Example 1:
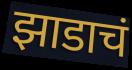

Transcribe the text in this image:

झाडाचं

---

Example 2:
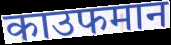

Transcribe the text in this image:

काउफमान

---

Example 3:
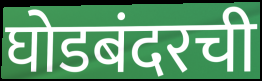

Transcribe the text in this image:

घोडबंदरची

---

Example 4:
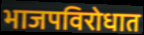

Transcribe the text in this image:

भाजपविरोधात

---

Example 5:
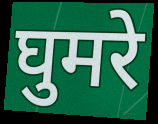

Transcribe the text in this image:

घुमरे